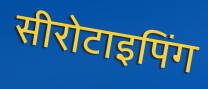
सीरोटाइपिंग